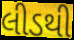
લીડથી